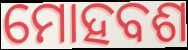
ମୋହବଶ